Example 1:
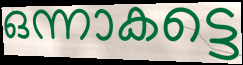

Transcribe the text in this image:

ഒന്നാകട്ടെ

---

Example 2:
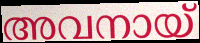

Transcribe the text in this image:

അവനായ്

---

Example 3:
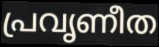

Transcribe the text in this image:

പ്രവൃണീത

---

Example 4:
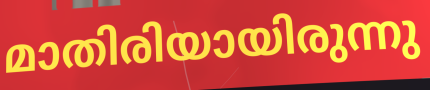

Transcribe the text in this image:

മാതിരിയായിരുന്നു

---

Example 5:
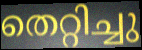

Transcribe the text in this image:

തെറ്റിച്ചു